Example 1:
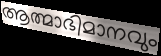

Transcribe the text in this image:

ആത്മാഭിമാനവും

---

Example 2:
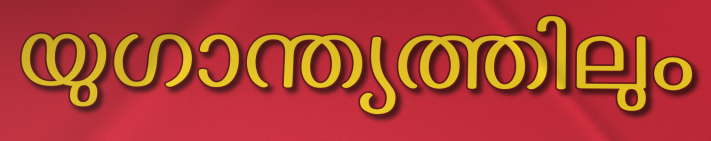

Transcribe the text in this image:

യുഗാന്ത്യത്തിലും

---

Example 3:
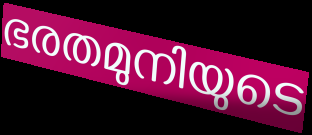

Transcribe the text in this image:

ഭരതമുനിയുടെ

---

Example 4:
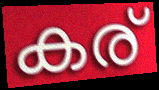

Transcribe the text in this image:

കര്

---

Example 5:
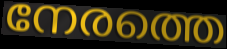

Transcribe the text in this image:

നേരത്തെ